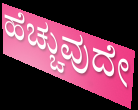
ಹೆಚ್ಚುವುದೇ